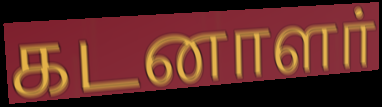
கடனாளர்